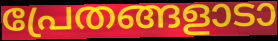
പ്രേതങ്ങളാടാ